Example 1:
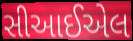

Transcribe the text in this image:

સીઆઈએલ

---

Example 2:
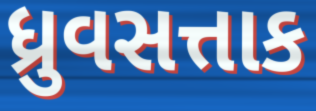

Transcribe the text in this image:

ધ્રુવસત્તાક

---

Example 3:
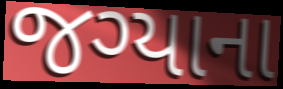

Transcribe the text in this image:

જગ્યાના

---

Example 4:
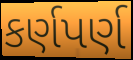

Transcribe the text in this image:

કર્ણપર્ણ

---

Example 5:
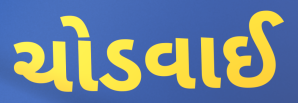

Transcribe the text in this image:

ચોડવાઈ